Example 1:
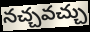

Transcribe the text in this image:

నచ్చవచ్చు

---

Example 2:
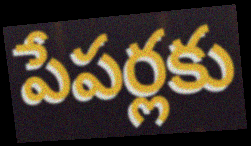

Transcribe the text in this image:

పేపర్లకు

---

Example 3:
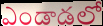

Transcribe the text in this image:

ఎండాడలో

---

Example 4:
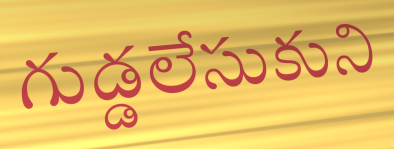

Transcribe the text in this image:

గుడ్డలేసుకుని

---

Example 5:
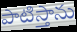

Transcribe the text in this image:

పాటిస్తాను